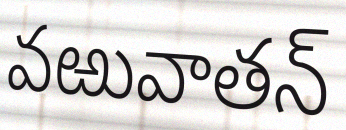
వఱువాతన్